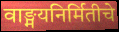
वाङ्मयनिर्मितीचे